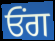
ਓਂਗ